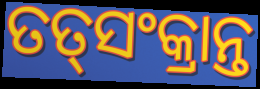
ତତ୍‌ସଂକ୍ରାନ୍ତ